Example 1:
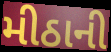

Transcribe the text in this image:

મીઠાની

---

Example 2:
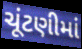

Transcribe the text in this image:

ચૂંટણીમાં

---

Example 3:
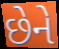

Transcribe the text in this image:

છેને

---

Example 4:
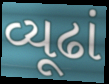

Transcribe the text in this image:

વ્યૂઢાં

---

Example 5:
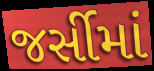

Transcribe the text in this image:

જર્સીમાં